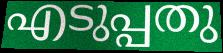
എടുപ്പതു